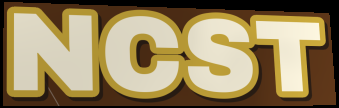
NCST